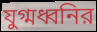
যুগ্মধ্বনির